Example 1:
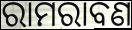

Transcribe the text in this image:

ରାମରାବଣ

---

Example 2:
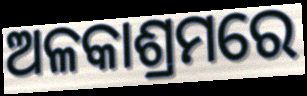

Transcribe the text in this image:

ଅଳକାଶ୍ରମରେ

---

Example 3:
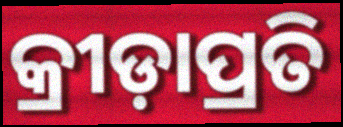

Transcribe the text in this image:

କ୍ରୀଡ଼ାପ୍ରତି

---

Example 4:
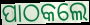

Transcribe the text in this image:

ପାଠକଲେ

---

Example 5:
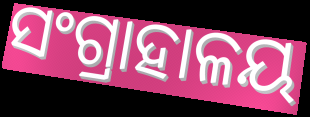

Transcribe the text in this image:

ସଂଗ୍ରାହାଳୟ